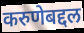
करुणेबद्दल